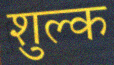
शुल्क